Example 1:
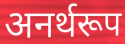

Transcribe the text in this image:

अनर्थरूप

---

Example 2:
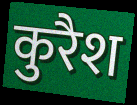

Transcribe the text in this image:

कुरैश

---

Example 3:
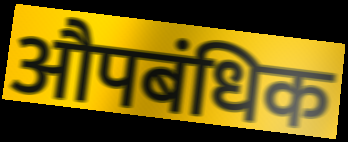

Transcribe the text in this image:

औपबंधिक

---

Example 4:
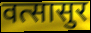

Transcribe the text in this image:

वत्सासुर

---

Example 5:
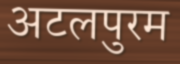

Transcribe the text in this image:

अटलपुरम